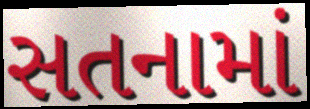
સતનામાં